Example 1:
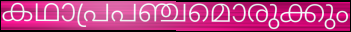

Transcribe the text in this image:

കഥാപ്രപഞ്ചമൊരുക്കും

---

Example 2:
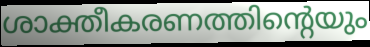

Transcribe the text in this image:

ശാക്തീകരണത്തിന്റെയും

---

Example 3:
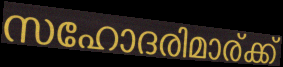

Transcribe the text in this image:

സഹോദരിമാര്ക്ക്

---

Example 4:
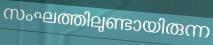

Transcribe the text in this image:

സംഘത്തിലുണ്ടായിരുന്ന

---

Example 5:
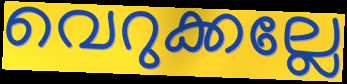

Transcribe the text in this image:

വെറുക്കല്ലേ